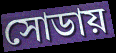
সোডায়